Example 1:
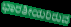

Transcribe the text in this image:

ಭಾರತೀಯರಿರುವ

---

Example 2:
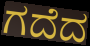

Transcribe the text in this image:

ಗದೆದ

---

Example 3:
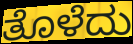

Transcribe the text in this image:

ತೊಳೆದು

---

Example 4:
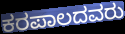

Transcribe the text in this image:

ಕರಪಾಲದವರು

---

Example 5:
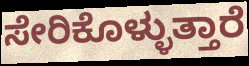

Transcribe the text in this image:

ಸೇರಿಕೊಳ್ಳುತ್ತಾರೆ